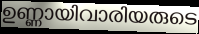
ഉണ്ണായിവാരിയരുടെ